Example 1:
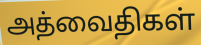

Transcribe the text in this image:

அத்வைதிகள்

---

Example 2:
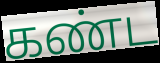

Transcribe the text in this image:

கண்ட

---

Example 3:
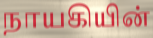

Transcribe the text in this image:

நாயகியின்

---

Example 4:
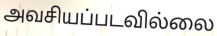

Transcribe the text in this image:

அவசியப்படவில்லை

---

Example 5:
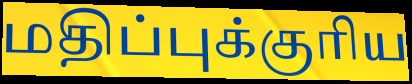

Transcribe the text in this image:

மதிப்புக்குரிய